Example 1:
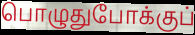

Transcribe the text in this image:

பொழுதுபோக்குப்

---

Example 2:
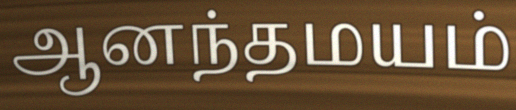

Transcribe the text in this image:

ஆனந்தமயம்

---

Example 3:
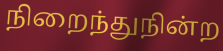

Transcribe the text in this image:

நிறைந்துநின்ற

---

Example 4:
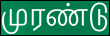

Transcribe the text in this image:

முரண்டு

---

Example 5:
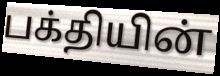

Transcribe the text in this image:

பக்தியின்